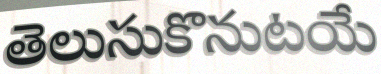
తెలుసుకొనుటయే